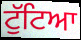
ਟੁੱਟਿਆ